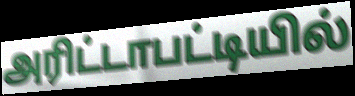
அரிட்டாபட்டியில்